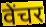
वेंचर